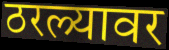
ठरल्यावर